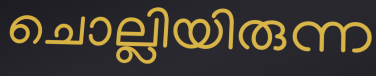
ചൊല്ലിയിരുന്ന